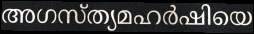
അഗസ്ത്യമഹർഷിയെ